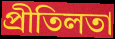
প্রীতিলতা